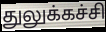
துலுக்கச்சி